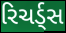
રિચર્ડ્સ